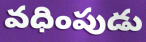
వధింపుడు